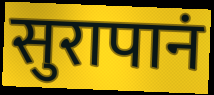
सुरापानं